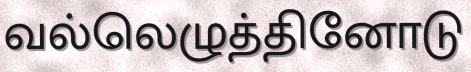
வல்லெழுத்தினோடு